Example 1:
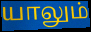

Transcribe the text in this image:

யாலும்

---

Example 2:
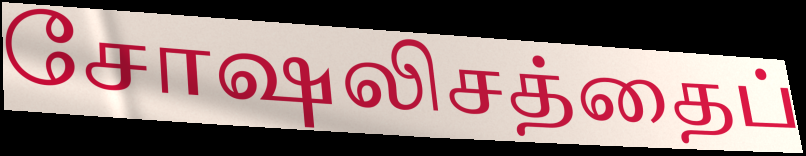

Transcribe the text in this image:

சோஷலிசத்தைப்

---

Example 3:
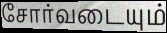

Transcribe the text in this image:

சோர்வடையும்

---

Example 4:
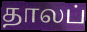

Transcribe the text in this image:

தாலப்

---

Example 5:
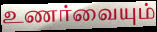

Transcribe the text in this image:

உணர்வையும்